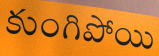
కుంగిపోయి